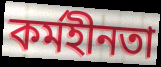
কৰ্মহীনতা